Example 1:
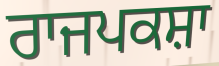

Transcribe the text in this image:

ਰਾਜਪਕਸ਼ਾ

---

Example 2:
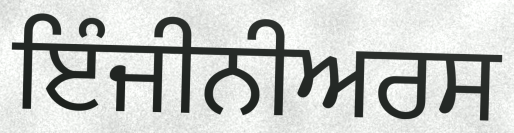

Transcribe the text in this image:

ਇੰਜੀਨੀਅਰਸ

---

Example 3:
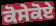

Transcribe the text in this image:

ਕੋਸੇਕੋਏ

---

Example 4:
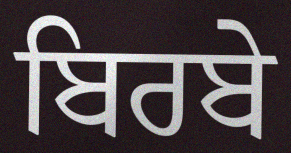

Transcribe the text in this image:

ਬਿਰਬੇ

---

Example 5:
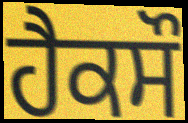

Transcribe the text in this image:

ਹੈਕਸੌ